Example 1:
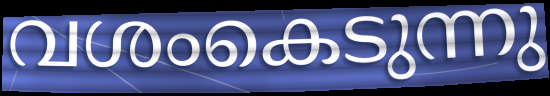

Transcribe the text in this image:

വശംകെടുന്നു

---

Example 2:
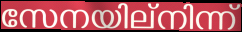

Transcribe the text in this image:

സേനയില്നിന്ന്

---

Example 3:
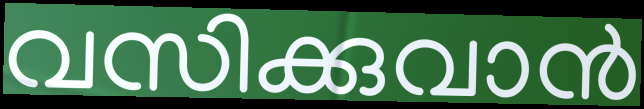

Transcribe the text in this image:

വസിക്കുവാൻ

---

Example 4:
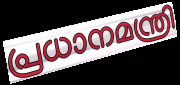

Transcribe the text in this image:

പ്രധാനമന്ത്രി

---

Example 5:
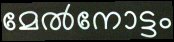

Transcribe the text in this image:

മേൽനോട്ടം